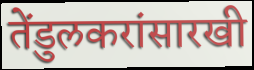
तेंडुलकरांसारखी